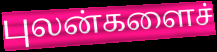
புலன்களைச்